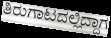
ತಿರುಗಾಟದಲ್ಲಿದ್ದಾಗ